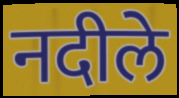
नदीले